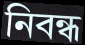
নিবন্ধ